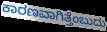
ಕಾರಣವಾಗಿತ್ತೆಂಬುದು